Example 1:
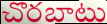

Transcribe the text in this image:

చొరబాటు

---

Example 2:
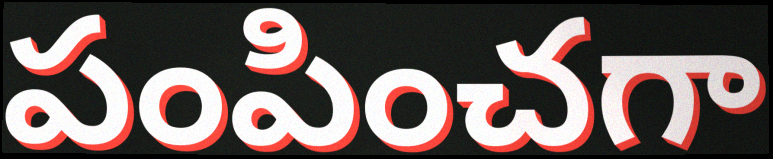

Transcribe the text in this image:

పంపించగా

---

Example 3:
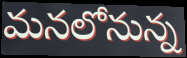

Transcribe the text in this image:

మనలోనున్న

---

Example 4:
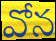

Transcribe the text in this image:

వోన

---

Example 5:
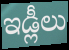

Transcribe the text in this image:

ఇడ్లీలు